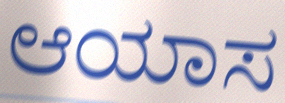
ಆಯಾಸ